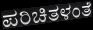
ಪರಿಚಿತಳಂತೆ